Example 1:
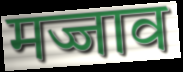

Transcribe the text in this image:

मज्जाव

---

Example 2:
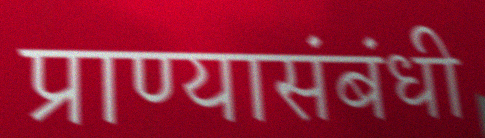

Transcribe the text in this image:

प्राण्यासंबंधी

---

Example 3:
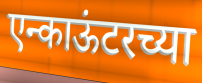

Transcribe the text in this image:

एन्काऊंटरच्या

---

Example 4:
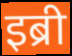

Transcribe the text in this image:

इब्री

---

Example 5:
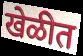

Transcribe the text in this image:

खेळीत